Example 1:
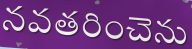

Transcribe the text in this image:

నవతరించెను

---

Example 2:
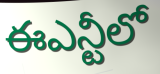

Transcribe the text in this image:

ఈఎన్టీలో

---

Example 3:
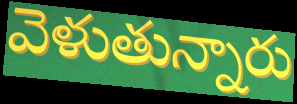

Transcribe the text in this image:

వెళుతున్నారు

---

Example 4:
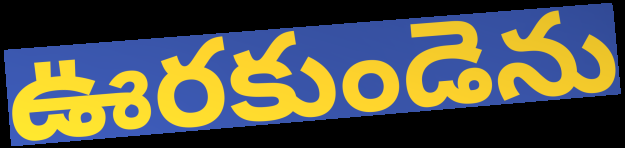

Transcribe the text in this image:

ఊరకుండెను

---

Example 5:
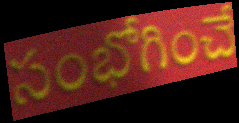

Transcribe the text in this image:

సంభోగించే